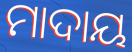
ମାଦାୟ